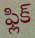
ఫ్లిక్